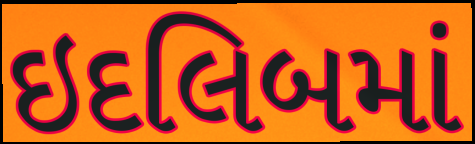
ઇદલિબમાં